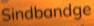
Sindbandge